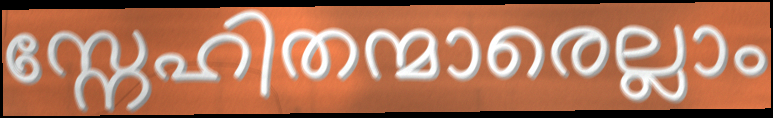
സ്നേഹിതന്മാരെല്ലാം